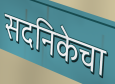
सदनिकेचा